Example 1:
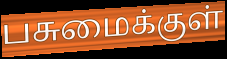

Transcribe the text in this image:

பசுமைக்குள்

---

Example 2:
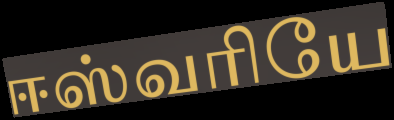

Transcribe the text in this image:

ஈஸ்வரியே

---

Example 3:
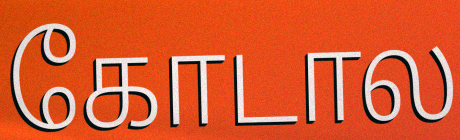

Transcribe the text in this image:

கோடால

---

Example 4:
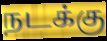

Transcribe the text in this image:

நடக்கு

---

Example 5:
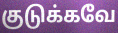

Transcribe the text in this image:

குடுக்கவே